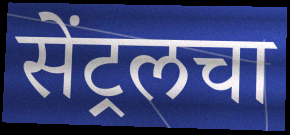
सेंट्रलचा